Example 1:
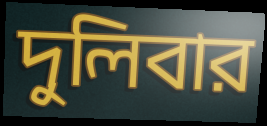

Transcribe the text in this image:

দুলিবার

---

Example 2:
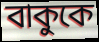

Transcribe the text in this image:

বাকুকে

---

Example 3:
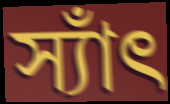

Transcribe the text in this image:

স্যাঁৎ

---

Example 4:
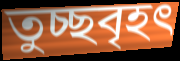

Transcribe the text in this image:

তুচ্ছবৃহৎ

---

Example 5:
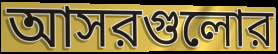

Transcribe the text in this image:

আসরগুলোর